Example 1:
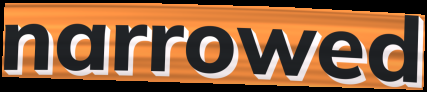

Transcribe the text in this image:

narrowed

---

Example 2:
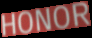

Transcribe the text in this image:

HONOR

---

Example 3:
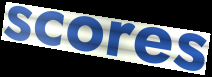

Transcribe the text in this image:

scores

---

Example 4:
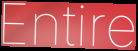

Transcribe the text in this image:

Entire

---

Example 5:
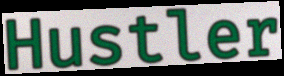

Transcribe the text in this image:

Hustler